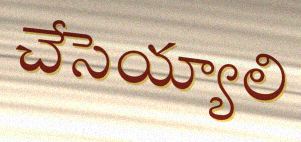
చేసెయ్యాలి